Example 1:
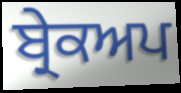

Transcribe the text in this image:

ਬ੍ਰੇਕਅਪ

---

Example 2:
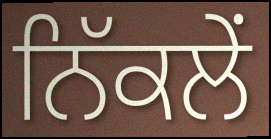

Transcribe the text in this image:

ਨਿੱਕਲੇਂ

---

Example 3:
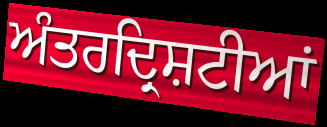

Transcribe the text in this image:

ਅੰਤਰਦ੍ਰਿਸ਼ਟੀਆਂ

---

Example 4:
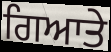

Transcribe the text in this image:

ਗਿਆਤੇ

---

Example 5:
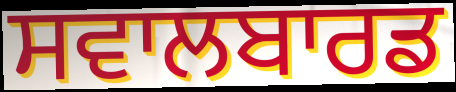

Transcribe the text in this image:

ਸਵਾਲਬਾਰਡ